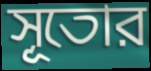
সূতোর